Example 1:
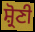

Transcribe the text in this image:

ਸ਼੍ਰੋਣੀ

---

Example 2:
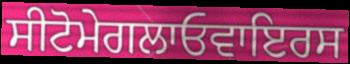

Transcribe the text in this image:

ਸੀਟੋਮੇਗਲਾਓਵਾਇਰਸ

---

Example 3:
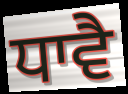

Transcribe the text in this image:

ਧਾਵੈ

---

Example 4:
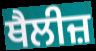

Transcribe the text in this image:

ਥੈਲੀਜ਼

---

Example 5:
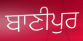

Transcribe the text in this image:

ਬਾਣੀਪੁਰ